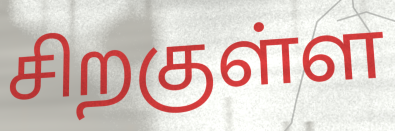
சிறகுள்ள